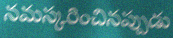
నమస్కరించినప్పుడు